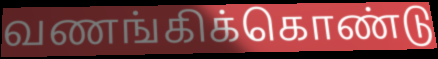
வணங்கிக்கொண்டு